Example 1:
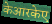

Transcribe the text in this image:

केआरकेए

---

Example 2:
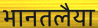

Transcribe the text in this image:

भानतलैया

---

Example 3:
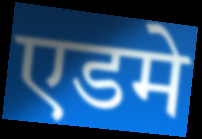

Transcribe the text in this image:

एडमे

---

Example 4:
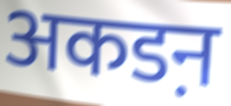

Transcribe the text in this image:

अकडऩ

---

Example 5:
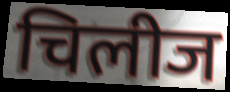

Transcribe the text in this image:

चिलीज